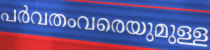
പർവതംവരെയുമുള്ള